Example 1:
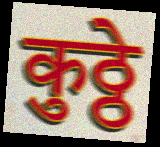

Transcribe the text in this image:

कुठ्ठे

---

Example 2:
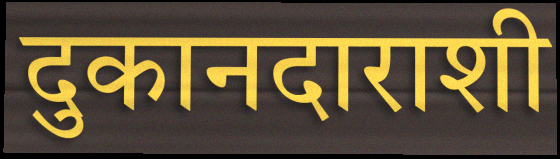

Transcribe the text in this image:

दुकानदाराशी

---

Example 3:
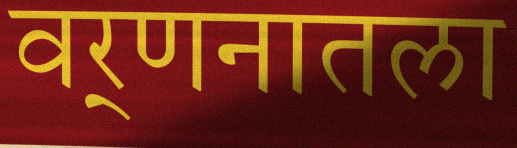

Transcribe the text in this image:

वर्णनातला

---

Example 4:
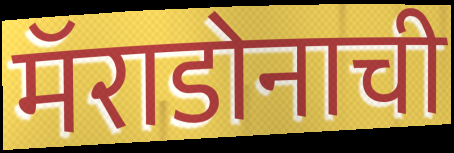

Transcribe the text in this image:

मॅराडोनाची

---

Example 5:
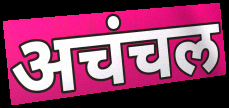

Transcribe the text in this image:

अचंचल